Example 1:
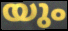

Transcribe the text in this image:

യും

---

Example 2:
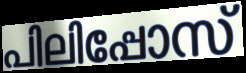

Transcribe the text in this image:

പിലിപ്പോസ്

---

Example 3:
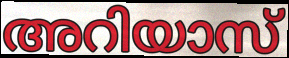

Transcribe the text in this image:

അറിയാസ്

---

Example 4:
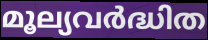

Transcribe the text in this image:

മൂല്യവർദ്ധിത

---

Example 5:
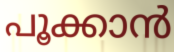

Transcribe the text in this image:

പൂക്കാൻ